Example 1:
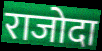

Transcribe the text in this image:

राजोदा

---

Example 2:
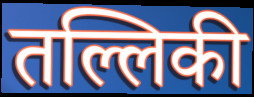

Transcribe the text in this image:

तल्लिकी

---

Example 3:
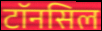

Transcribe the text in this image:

टॉनसिल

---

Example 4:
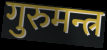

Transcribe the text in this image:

गुरुमन्त्र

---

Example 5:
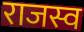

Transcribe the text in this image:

राजस्‍व